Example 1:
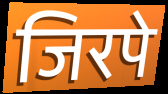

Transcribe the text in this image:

जिरपे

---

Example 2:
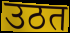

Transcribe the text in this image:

उठत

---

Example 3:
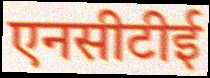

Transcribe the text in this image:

एनसीटीई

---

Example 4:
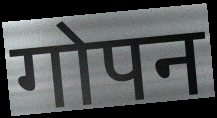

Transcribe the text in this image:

गोपन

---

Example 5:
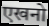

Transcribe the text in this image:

एखनो